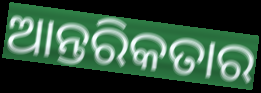
ଆନ୍ତରିକତାର